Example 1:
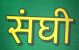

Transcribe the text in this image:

संघी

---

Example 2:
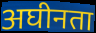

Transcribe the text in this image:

अघीनता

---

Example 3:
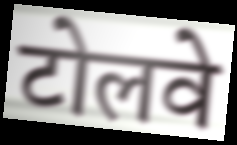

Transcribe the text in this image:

टोलवे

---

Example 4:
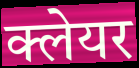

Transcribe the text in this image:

क्‍लेयर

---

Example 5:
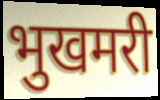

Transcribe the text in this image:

भुखमरी